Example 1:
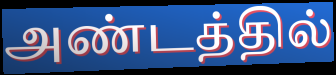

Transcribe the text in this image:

அண்டத்தில்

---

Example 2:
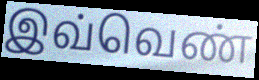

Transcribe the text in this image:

இவ்வெண்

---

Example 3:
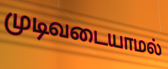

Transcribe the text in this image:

முடிவடையாமல்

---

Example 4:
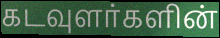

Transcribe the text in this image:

கடவுளர்களின்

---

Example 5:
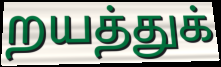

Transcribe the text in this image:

றயத்துக்